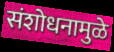
संशोधनामुळे